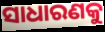
ସାଧାରଣକୁ